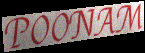
POONAM